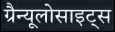
ग्रैन्यूलोसाइट्स